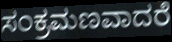
ಸಂಕ್ರಮಣವಾದರೆ